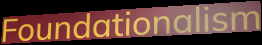
Foundationalism